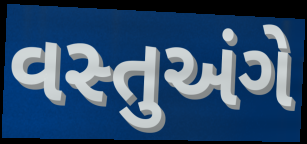
વસ્તુઅંગે